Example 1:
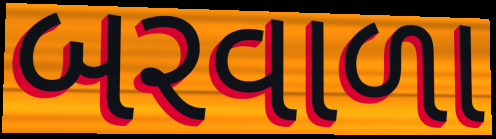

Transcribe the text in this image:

બરવાળા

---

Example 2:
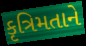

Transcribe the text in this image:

કૃત્રિમતાને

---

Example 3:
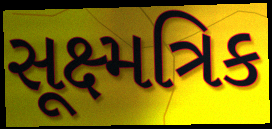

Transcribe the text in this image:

સૂક્ષ્મત્રિક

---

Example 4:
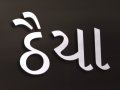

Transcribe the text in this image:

ઠૈયા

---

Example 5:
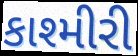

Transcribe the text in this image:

કાશ્મીરી